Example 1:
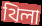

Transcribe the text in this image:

থিলা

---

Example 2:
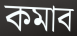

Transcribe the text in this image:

কমাব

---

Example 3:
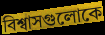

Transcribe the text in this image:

বিশ্বাসগুলোকে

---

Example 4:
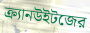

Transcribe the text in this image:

ক্র্যানউইটজের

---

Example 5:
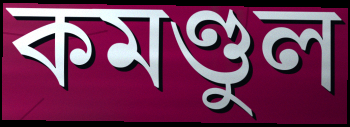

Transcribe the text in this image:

কমণ্ডুল